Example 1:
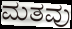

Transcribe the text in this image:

ಮತವು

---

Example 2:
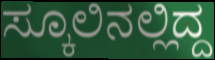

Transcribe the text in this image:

ಸ್ಕೂಲಿನಲ್ಲಿದ್ದ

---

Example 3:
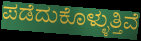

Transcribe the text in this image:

ಪಡೆದುಕೊಳ್ಳುತ್ತಿವೆ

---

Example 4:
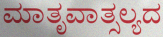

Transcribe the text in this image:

ಮಾತೃವಾತ್ಸಲ್ಯದ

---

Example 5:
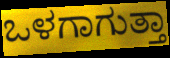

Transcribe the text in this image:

ಒಳಗಾಗುತ್ತಾ